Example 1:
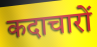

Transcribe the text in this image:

कदाचारों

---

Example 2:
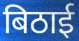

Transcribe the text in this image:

बिठाई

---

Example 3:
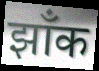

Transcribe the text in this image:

झाँक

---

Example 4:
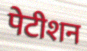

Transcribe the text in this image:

पेटीशन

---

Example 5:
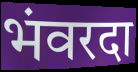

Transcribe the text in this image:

भंवरदा